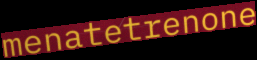
menatetrenone